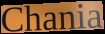
Chania